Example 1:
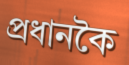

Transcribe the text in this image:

প্ৰধানকৈ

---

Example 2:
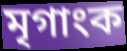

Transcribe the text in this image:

মৃগাংক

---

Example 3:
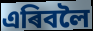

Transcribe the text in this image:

এৰিবলৈ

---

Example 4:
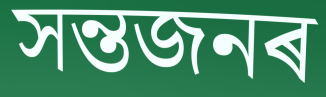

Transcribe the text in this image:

সন্তজনৰ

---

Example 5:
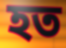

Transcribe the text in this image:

হত